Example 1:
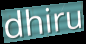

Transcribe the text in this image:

dhiru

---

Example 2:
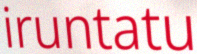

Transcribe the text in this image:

iruntatu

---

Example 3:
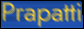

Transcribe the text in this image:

Prapatti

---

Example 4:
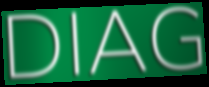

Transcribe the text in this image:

DIAG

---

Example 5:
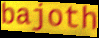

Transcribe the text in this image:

bajoth